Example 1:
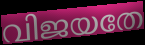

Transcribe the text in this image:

വിജയതേ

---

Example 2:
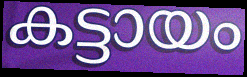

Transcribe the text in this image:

കട്ടായം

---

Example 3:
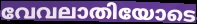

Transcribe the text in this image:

വേവലാതിയോടെ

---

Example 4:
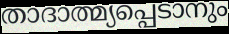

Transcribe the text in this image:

താദാത്മ്യപ്പെടാനും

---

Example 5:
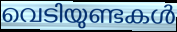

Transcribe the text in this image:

വെടിയുണ്ടകൾ